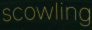
scowling